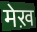
मेख़